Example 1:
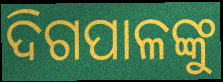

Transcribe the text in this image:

ଦିଗପାଳଙ୍କୁ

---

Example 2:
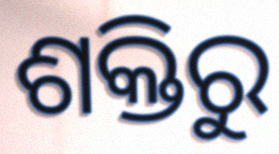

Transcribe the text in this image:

ଶକ୍ତିରୁ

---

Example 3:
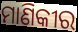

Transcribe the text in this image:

ମାଣିକୀର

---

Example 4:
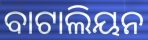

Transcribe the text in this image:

ବାଟାଲିୟନ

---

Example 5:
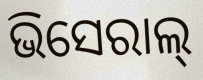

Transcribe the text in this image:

ଭିସେରାଲ୍